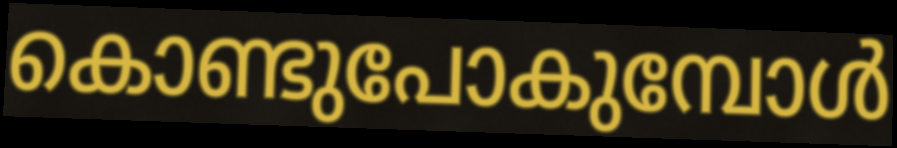
കൊണ്ടുപോകുമ്പോൾ